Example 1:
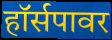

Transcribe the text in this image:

हॉर्सपावर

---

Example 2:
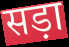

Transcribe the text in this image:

सड़ा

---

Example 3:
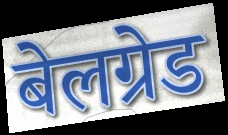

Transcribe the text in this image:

बेलग्रेड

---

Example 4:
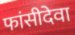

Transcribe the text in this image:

फांसीदेवा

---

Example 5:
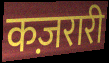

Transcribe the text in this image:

कज़रारी